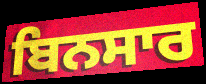
ਬਿਨਸਾਰ